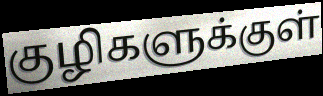
குழிகளுக்குள்